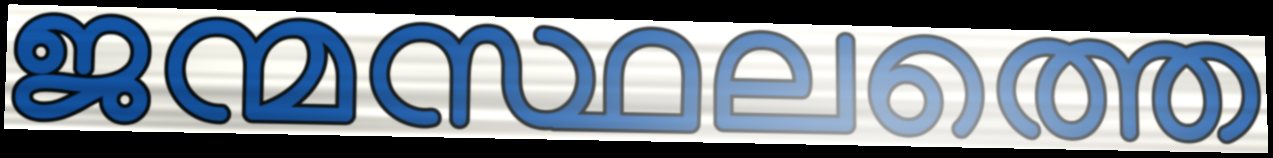
ജന്മസ്ഥലത്തെ